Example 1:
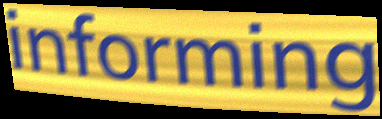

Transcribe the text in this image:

informing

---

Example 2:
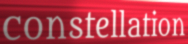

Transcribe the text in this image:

constellation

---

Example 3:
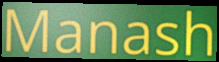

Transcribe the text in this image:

Manash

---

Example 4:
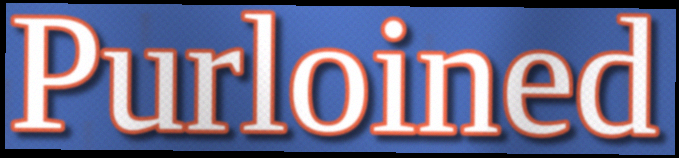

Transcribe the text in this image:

Purloined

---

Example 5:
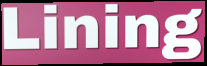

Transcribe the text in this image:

Lining